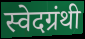
स्वेदग्रंथी